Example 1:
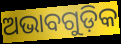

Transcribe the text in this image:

ଅଭାବଗୁଡ଼ିକ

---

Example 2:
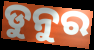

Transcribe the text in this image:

ଡୁନୁର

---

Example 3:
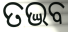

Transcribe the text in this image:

ତଦ୍ଭବ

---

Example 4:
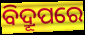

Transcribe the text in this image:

ବିଦ୍ରୂପରେ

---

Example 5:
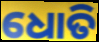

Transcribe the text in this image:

ଧୋତି